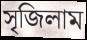
সৃজিলাম